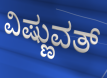
ವಿಷ್ಣುವತ್